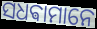
ସଧଵାମାନେ